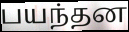
பயந்தன